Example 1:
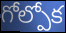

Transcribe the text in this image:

గోల్పోక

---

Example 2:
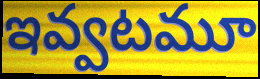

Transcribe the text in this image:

ఇవ్వటమూ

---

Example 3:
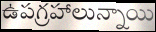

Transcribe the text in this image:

ఉపగ్రహాలున్నాయి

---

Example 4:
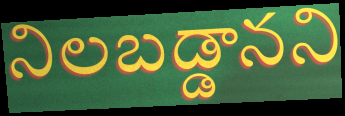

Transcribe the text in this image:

నిలబడ్డానని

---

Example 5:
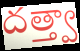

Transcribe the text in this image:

దత్త్వా